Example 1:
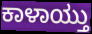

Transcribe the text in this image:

ಕಾಳಾಯ್ತು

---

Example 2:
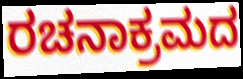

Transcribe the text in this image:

ರಚನಾಕ್ರಮದ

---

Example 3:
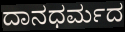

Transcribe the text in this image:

ದಾನಧರ್ಮದ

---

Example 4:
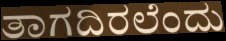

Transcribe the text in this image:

ತಾಗದಿರಲೆಂದು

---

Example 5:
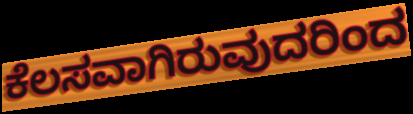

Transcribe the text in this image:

ಕೆಲಸವಾಗಿರುವುದರಿಂದ